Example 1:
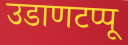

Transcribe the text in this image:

उडाणटप्पू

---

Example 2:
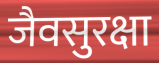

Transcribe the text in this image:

जैवसुरक्षा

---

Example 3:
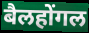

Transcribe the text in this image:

बैलहोंगल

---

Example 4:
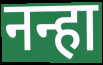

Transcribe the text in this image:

नन्हा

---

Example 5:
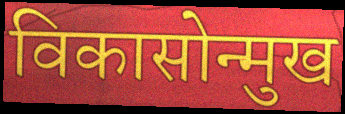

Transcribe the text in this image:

विकासोन्मुख